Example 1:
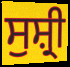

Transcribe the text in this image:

ਸੁਸ਼੍ਰੀ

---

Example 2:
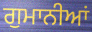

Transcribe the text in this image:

ਗੁਮਾਨੀਆਂ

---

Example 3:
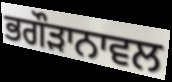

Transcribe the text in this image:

ਭਗੌੜਾਨਾਵਲ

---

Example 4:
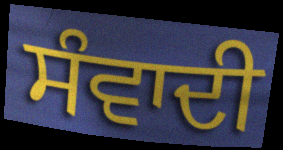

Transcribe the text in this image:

ਸੰਵਾਦੀ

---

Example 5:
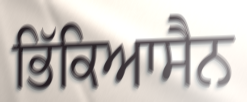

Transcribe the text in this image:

ਭਿੱਕਿਆਸੈਨ